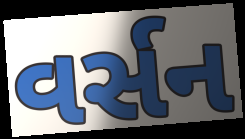
વર્સન